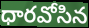
ధారవోసిన